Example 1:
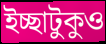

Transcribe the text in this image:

ইচ্ছাটুকুও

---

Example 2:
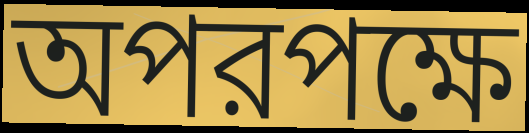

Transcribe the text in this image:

অপরপক্ষে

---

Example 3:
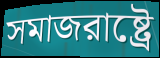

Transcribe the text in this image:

সমাজরাষ্ট্রে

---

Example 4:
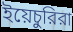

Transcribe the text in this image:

ইয়েচুরিরা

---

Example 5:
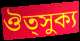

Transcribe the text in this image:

ঔত্সুক্য